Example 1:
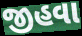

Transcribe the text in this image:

જીહવા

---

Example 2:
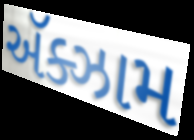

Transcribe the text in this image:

ઍક્ઝામ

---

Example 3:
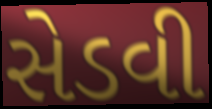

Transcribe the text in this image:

સેડવી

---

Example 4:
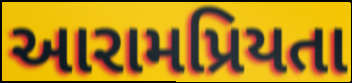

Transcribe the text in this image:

આરામપ્રિયતા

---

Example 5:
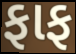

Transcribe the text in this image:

ફાફ